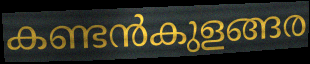
കണ്ടൻകുളങ്ങര